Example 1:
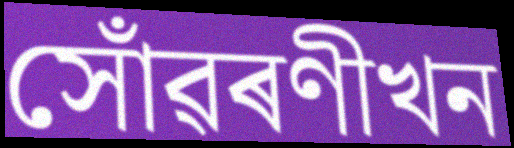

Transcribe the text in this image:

সোঁৱৰণীখন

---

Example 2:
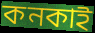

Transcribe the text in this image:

কনকাই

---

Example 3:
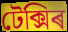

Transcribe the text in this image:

টেক্সিৰ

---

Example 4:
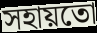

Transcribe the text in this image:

সহায়তো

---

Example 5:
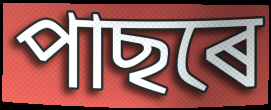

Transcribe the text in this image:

পাছৰে